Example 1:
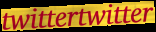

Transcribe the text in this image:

twittertwitter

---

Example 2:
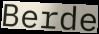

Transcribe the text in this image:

Berde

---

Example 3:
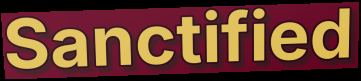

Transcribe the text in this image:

Sanctified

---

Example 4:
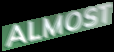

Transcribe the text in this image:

ALMOST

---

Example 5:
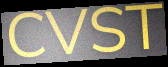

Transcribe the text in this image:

CVST